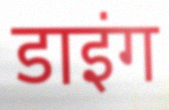
डाइंग